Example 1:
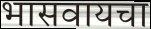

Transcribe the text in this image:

भासवायचा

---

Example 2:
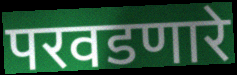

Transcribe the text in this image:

परवडणारे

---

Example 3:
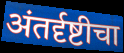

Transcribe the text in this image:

अंतर्दृष्टीचा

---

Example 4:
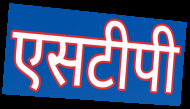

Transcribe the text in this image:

एसटीपी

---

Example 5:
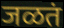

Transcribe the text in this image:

जळतं